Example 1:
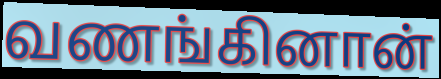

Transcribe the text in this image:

வணங்கினான்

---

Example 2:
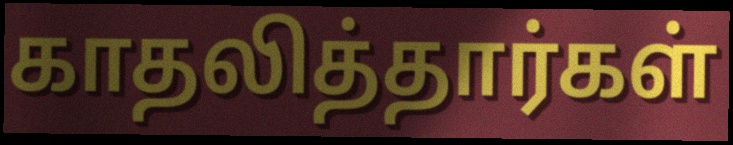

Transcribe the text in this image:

காதலித்தார்கள்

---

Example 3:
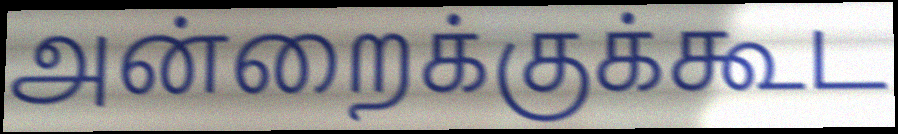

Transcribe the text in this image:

அன்றைக்குக்கூட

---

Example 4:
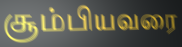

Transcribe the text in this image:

சூம்பியவரை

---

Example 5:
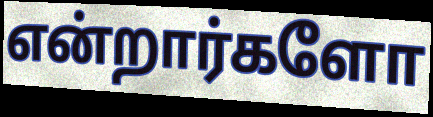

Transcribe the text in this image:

என்றார்களோ